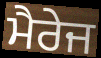
ਮੈਰੇਜ